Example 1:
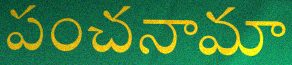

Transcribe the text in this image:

పంచనామా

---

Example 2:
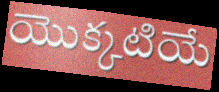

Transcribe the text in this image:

యొక్కటియే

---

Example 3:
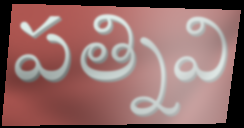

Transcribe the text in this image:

పత్నివి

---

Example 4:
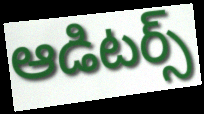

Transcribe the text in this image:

ఆడిటర్స్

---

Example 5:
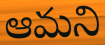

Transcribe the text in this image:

ఆమని